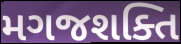
મગજશક્તિ